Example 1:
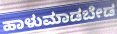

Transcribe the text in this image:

ಹಾಳುಮಾಡಬೇಡ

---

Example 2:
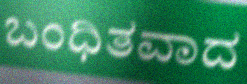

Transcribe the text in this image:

ಬಂಧಿತವಾದ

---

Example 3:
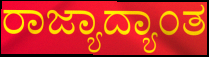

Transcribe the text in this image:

ರಾಜ್ಯಾದ್ಯಾಂತ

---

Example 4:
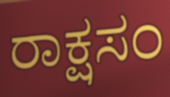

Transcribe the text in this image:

ರಾಕ್ಷಸಂ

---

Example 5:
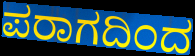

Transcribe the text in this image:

ಪರಾಗದಿಂದ